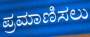
ಪ್ರಮಾಣಿಸಲು